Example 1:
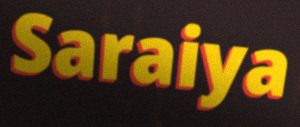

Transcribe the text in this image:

Saraiya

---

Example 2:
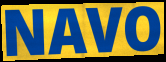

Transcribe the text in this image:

NAVO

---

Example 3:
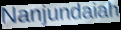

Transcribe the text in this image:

Nanjundaiah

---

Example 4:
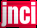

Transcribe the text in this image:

jnci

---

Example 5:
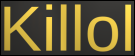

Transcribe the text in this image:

Killol